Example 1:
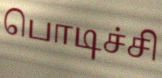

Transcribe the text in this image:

பொடிச்சி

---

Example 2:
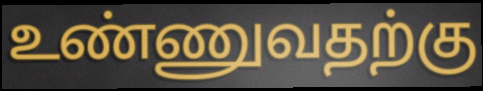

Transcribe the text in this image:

உண்ணுவதற்கு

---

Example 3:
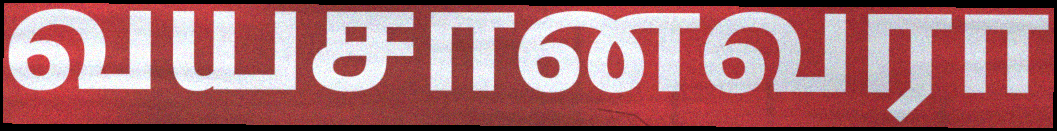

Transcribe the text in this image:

வயசானவரா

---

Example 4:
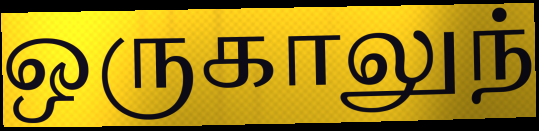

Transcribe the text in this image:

ஒருகாலுந்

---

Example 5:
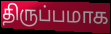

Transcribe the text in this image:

திருப்பமாக